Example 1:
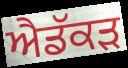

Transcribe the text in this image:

ਐਡੱਕੜ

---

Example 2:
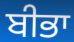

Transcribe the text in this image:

ਬੀਭਾ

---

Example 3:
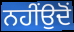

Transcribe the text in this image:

ਨਹੀਂਉਦੋਂ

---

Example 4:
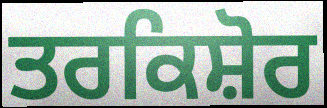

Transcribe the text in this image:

ਤਰਕਿਸ਼ੋਰ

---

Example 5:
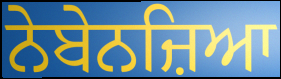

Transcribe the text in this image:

ਨੇਬੇਨਜ਼ਿਆ